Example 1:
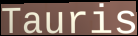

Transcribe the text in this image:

Tauris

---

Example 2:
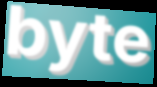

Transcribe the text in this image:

byte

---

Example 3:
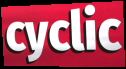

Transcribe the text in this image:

cyclic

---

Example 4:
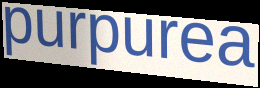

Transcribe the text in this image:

purpurea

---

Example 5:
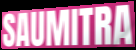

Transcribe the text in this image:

SAUMITRA